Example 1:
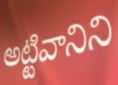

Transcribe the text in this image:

అట్టివానిని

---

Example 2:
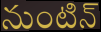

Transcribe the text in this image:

నుంటిన్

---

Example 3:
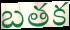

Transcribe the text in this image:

బతక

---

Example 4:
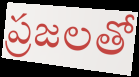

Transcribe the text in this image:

ప్రజలతో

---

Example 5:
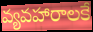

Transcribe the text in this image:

వ్యవహారాలకే